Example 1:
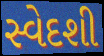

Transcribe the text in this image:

સ્વેદશી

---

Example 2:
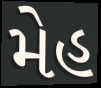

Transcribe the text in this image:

મેહ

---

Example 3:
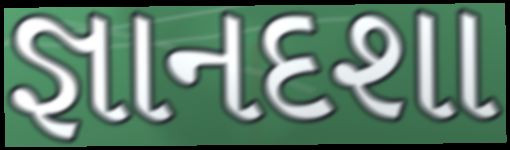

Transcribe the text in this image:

જ્ઞાનદશા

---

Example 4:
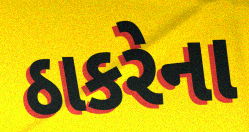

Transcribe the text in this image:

ઠાકરેના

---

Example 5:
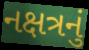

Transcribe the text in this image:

નક્ષત્રનું